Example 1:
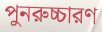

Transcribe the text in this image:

পুনরুচ্চারণ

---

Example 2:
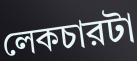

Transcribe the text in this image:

লেকচারটা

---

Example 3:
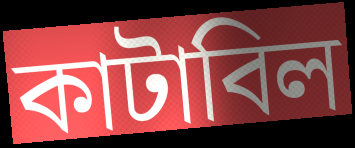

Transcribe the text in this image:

কাটাবিল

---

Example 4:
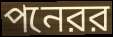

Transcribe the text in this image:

পনেরর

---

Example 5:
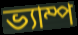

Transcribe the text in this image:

ভ্যাম্প